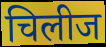
चिलीज